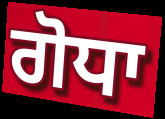
ਗੋਧਾ